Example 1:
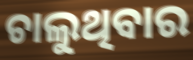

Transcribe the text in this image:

ଚାଲୁଥିବାର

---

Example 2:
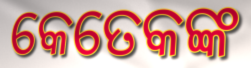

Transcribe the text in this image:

କେତେକଙ୍କ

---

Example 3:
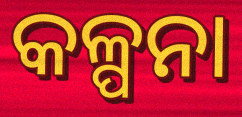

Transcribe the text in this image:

କଳ୍ପନା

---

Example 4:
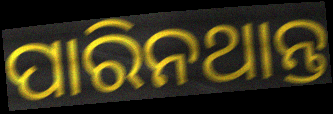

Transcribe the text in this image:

ପାରିନଥାନ୍ତ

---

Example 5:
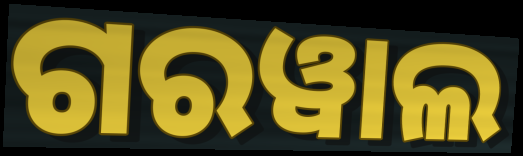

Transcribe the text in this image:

ଗରୱାଲ